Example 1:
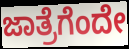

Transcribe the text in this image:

ಜಾತ್ರೆಗೆಂದೇ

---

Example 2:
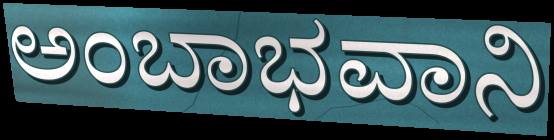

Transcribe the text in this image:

ಅಂಬಾಭವಾನಿ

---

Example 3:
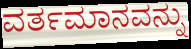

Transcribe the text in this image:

ವರ್ತಮಾನವನ್ನು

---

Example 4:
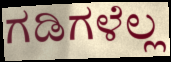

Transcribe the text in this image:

ಗಡಿಗಳೆಲ್ಲ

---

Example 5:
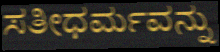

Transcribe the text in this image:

ಸತೀಧರ್ಮವನ್ನು